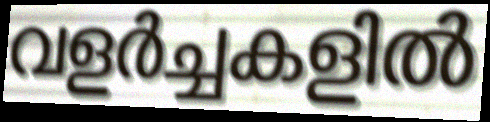
വളർച്ചകളിൽ